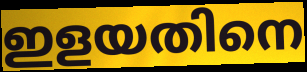
ഇളയതിനെ